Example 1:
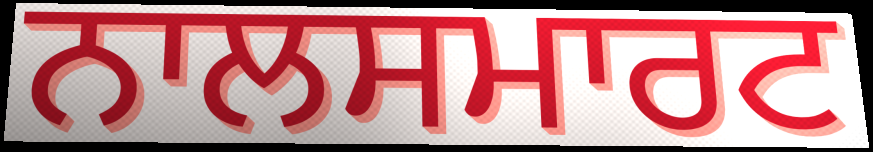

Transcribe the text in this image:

ਨਾਲਸਮਾਰਟ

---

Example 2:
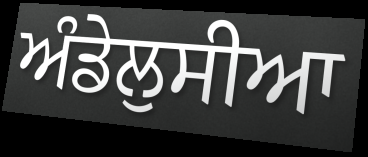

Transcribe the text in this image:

ਅੰਡੇਲੁਸੀਆ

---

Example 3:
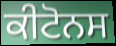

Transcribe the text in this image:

ਕੀਟੋਨਸ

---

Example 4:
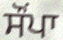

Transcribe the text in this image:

ਸੌਂਪਾ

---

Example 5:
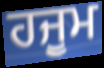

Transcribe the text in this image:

ਹਜੂਮ